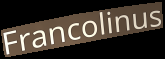
Francolinus